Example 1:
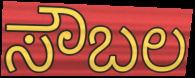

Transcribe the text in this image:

ಸೌಬಲ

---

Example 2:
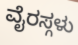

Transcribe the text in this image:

ವೈರಸ್ಗಳು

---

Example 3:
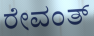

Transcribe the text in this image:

ರೇವಂತ್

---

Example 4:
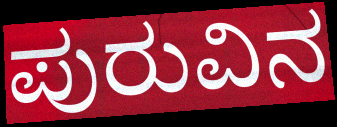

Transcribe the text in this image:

ಪುರುವಿನ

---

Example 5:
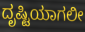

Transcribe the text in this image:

ದೃಷ್ಟಿಯಾಗಲೀ